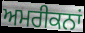
ਅਮਰੀਕਨਾਂ